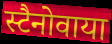
स्टैनोवाया